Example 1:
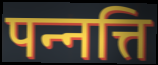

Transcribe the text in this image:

पन्नत्ति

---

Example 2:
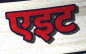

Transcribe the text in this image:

एइट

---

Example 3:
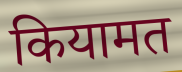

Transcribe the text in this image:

कियामत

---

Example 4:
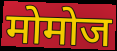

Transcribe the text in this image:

मोमोज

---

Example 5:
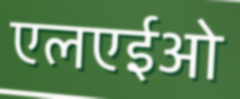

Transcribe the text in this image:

एलएईओ